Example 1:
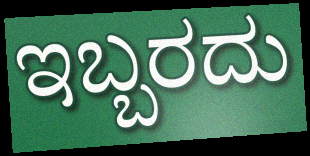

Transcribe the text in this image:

ಇಬ್ಬರದು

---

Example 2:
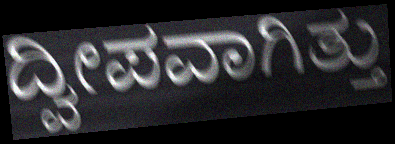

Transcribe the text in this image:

ದ್ವೀಪವಾಗಿತ್ತು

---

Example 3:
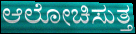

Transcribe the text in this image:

ಆಲೋಚಿಸುತ್ತ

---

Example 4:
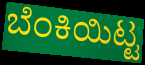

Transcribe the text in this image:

ಬೆಂಕಿಯಿಟ್ಟ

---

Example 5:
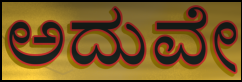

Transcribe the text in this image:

ಅದುವೇ